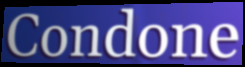
Condone